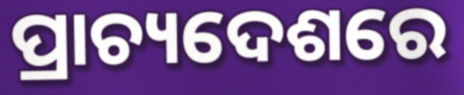
ପ୍ରାଚ୍ୟଦେଶରେ